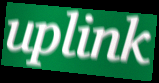
uplink